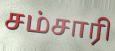
சம்சாரி